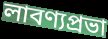
লাবণ্যপ্রভা